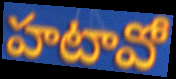
హటావో